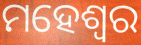
ମହେଶ୍ଵର